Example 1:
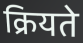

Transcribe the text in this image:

क्रियते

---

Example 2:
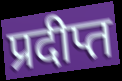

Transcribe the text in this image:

प्रदीप्त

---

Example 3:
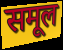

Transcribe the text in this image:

समूल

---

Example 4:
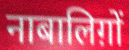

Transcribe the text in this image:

नाबालिग़ों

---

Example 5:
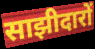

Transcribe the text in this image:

साझीदारों